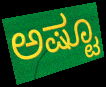
ಅಷ್ಟೂ